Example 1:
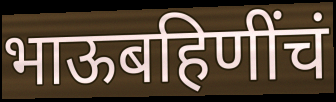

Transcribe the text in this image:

भाऊबहिणींचं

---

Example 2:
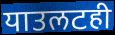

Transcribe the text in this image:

याउलटही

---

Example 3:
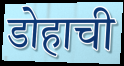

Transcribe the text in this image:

डोहाची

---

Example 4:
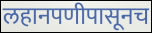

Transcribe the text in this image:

लहानपणीपासूनच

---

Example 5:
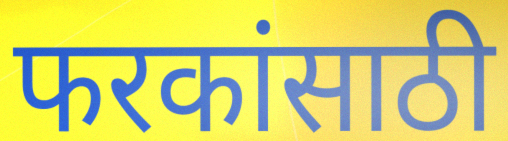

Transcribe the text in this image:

फरकांसाठी